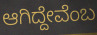
ಆಗಿದ್ದೇವೆಂಬ